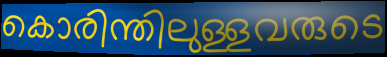
കൊരിന്തിലുള്ളവരുടെ